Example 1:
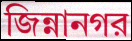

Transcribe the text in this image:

জিন্নানগর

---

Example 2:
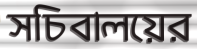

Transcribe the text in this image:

সচিবালয়ের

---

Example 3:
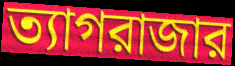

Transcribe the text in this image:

ত্যাগরাজার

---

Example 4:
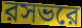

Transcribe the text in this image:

রসভরে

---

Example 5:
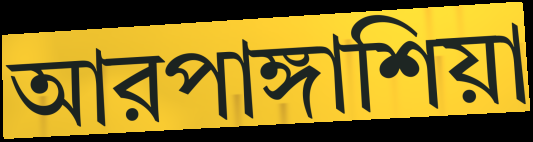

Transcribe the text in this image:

আরপাঙ্গাশিয়া